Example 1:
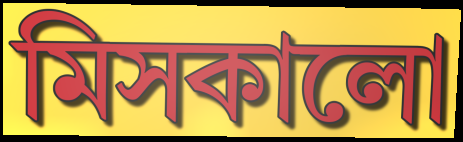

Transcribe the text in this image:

মিসকালো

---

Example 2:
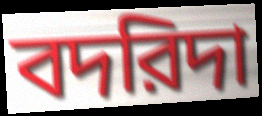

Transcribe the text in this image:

বদরিদা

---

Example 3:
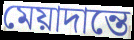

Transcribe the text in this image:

মেয়াদান্তে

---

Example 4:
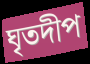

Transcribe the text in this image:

ঘৃতদীপ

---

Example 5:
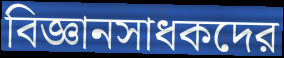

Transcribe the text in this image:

বিজ্ঞানসাধকদের